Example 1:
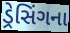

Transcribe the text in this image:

ડ્રેસિંગના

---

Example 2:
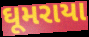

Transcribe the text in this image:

ઘૂમરાયા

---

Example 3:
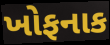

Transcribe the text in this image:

ખોફનાક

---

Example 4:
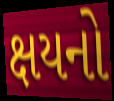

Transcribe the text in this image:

ક્ષયનો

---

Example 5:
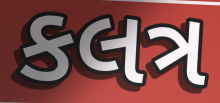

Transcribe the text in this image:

કલત્ર